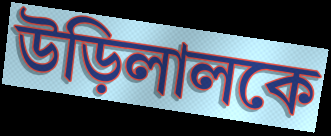
উড়িলালকে